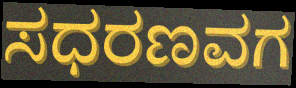
ಸಧರಣವಗ